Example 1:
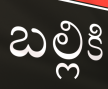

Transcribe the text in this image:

బల్లికి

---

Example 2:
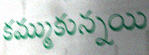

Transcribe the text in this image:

కమ్ముకున్నయి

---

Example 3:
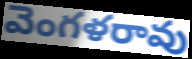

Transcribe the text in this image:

వెంగళరావు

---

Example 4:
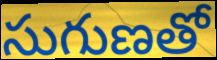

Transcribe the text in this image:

సుగుణతో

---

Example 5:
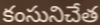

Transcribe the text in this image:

కంసునిచేత